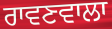
ਰਾਵਣਵਾਲਾ